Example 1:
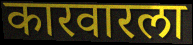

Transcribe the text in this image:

कारवारला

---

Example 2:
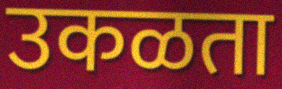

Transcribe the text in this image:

उकळता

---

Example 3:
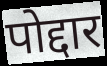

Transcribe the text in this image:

पोद्दार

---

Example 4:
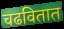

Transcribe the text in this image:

चढवितात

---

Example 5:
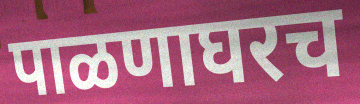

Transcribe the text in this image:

पाळणाघरच